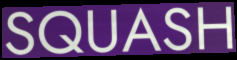
SQUASH